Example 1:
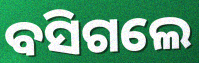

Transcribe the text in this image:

ବସିଗଲେ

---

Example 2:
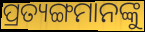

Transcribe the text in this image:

ପ୍ରତ୍ୟଙ୍ଗମାନଙ୍କୁ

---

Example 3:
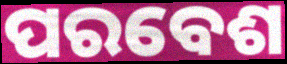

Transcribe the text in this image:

ପରବେଶ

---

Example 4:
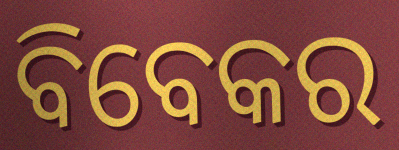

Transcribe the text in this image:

ବିବେକର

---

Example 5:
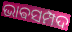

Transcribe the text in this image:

ଭାଵସମ୍ପଦ